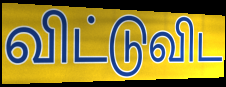
விட்டுவிட